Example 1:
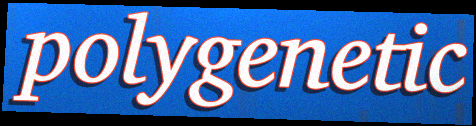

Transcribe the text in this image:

polygenetic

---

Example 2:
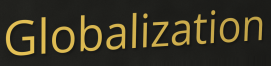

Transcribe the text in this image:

Globalization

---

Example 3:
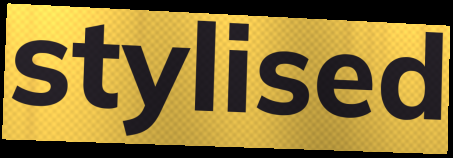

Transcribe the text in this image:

stylised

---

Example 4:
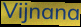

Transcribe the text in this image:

Vijnana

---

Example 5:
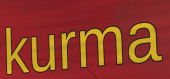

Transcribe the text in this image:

kurma